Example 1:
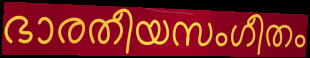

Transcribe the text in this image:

ഭാരതീയസംഗീതം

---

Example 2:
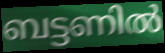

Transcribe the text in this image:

ബട്ടണിൽ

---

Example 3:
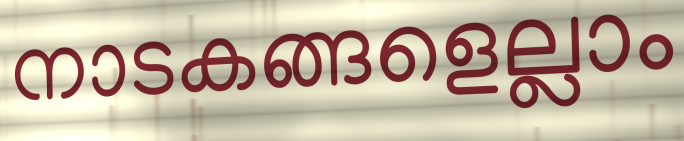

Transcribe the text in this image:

നാടകങ്ങളെല്ലാം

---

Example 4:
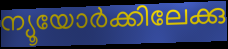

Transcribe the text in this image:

ന്യൂയോർക്കിലേക്കു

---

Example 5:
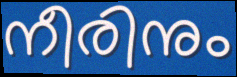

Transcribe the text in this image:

നീരിനും